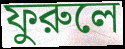
ফুরুলে